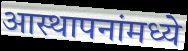
आस्थापनांमध्ये